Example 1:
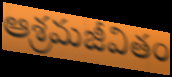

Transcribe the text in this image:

ఆశ్రమజీవితం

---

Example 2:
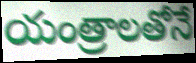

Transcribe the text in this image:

యంత్రాలతోనే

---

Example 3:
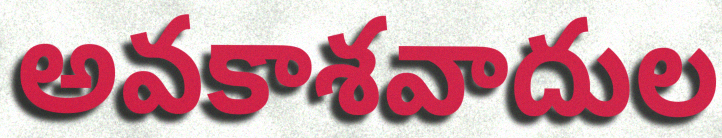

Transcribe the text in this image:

అవకాశవాదుల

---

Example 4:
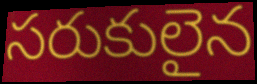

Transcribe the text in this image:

సరుకులైన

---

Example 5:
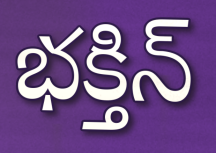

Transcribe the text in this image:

భక్తిన్